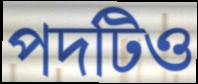
পদটিও